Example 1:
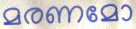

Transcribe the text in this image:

മരണമോ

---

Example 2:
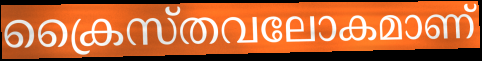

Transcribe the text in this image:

ക്രൈസ്തവലോകമാണ്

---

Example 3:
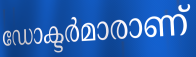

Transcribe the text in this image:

ഡോക്ടർമാരാണ്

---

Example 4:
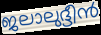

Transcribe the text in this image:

ജലാലുദ്ദീൻ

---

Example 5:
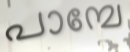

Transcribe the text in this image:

പാമ്പേ